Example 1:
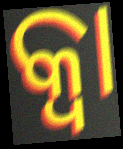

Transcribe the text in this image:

କ୍ଵା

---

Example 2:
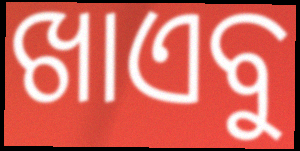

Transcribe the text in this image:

ଖାଏବୁ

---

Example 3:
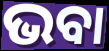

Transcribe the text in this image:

ଭବା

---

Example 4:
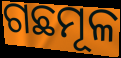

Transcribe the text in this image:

ଗଛମୂଳ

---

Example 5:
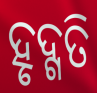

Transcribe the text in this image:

ହୃଦ୍ଗତି